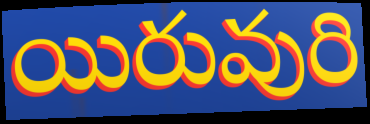
యిరువురి